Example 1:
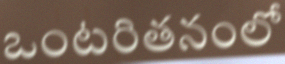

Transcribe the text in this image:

ఒంటరితనంలో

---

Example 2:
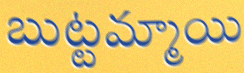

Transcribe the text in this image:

బుట్టమ్మాయి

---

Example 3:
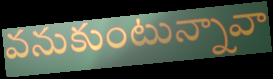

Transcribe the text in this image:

వనుకుంటున్నావా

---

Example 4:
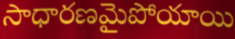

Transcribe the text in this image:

సాధారణమైపోయాయి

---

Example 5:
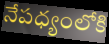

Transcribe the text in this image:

నేపధ్యంలోకి